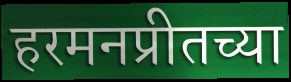
हरमनप्रीतच्या